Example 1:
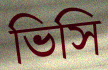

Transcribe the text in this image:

ভিসি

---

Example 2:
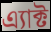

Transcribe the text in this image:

এ্যাক্ট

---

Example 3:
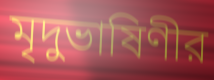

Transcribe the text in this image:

মৃদুভাষিণীর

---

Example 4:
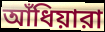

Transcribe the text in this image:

আঁধিয়ারা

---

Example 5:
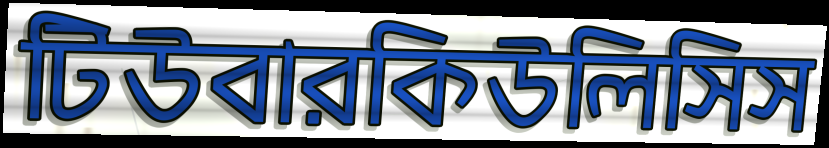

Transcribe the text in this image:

টিউবারকিউলিসিস